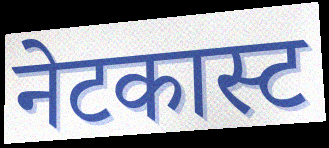
नेटकास्ट